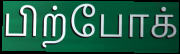
பிற்போக்